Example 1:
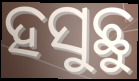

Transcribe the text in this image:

ହସୁଛୁ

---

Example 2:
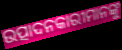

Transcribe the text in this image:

ଉତ୍ପାଦନକାରୀମାନଙ୍କୁ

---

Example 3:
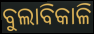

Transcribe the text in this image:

ବୁଲାବିକାଳି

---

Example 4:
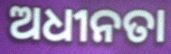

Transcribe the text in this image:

ଅଧୀନତା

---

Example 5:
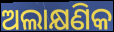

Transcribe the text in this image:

ଅଲାକ୍ଷଣିକ